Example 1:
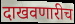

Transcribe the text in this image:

दाखवणारीच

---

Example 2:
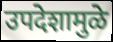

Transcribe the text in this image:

उपदेशामुळे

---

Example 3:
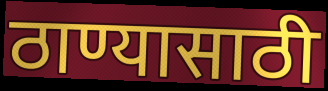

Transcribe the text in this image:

ठाण्यासाठी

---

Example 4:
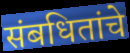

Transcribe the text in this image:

संबधितांचे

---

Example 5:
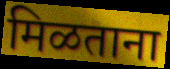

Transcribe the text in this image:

मिळताना